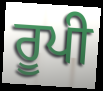
ਰੂਪੀ